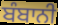
ਬੰਬਾਨੀ